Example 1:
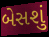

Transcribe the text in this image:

બેસશું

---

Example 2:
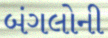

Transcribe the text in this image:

બંગલોની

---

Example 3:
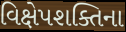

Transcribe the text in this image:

વિક્ષેપશક્તિના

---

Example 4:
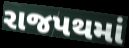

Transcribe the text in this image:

રાજપથમાં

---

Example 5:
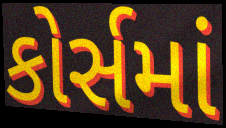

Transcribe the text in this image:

કોર્સમાં